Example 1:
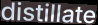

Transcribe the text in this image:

distillate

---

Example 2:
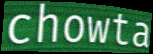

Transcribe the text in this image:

chowta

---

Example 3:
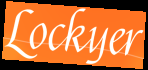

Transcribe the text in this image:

Lockyer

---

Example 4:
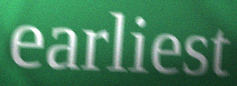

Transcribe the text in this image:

earliest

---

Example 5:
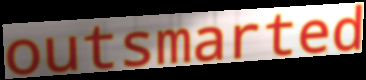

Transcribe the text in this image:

outsmarted